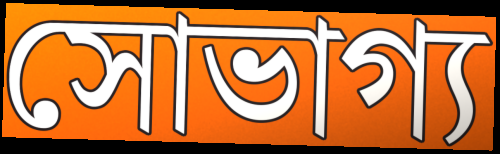
সোভাগ্য